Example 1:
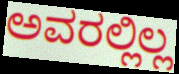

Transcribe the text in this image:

ಅವರಲ್ಲಿಲ್ಲ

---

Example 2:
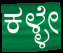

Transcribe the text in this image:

ಕಳ್ಳೇ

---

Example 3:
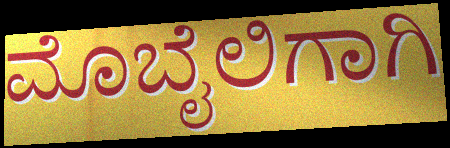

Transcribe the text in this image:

ಮೊಬೈಲಿಗಾಗಿ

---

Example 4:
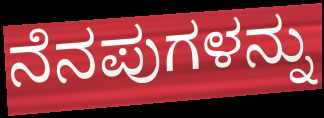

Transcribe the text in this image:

ನೆನಪುಗಳನ್ನು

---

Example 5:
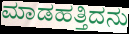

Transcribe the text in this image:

ಮಾಡಹತ್ತಿದನು